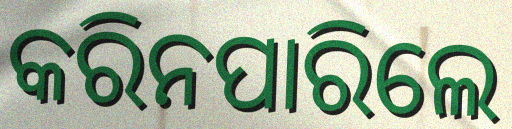
କରିନପାରିଲେ